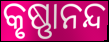
କୃଷ୍ଣାନନ୍ଦ